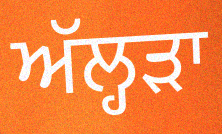
ਅੱਲ੍ਹੜਾ